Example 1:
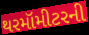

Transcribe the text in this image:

થરમૉમીટરની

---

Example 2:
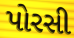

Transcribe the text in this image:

પોરસી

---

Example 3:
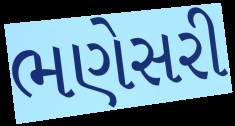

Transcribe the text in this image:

ભણેસરી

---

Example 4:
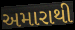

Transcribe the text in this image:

અમારાથી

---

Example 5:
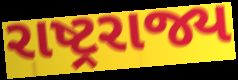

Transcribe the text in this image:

રાષ્ટ્રરાજ્ય